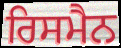
ਰਿਸਮੈਨ